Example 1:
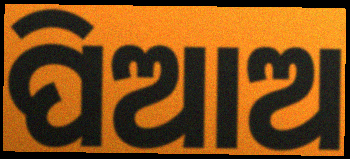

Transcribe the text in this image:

ପିଆଅ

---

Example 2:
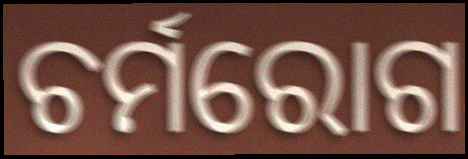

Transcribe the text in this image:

ଚର୍ମରୋଗ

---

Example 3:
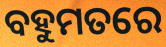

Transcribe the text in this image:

ବହୁମତରେ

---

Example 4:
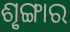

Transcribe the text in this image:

ଶୃଙ୍ଗାର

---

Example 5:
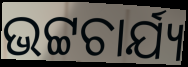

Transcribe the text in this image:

ଭଟ୍ଟଚାର୍ଯ୍ୟ